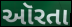
ઑરતા